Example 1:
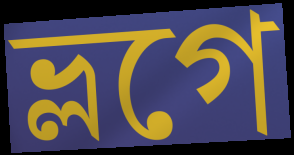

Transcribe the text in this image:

ভ্লগে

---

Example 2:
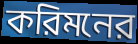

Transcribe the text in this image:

করিমনের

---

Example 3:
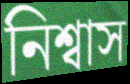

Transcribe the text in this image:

নিশ্বাস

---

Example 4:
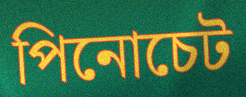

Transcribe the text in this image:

পিনোচেট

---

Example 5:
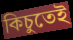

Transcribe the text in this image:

কিচুতেই